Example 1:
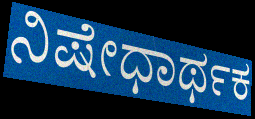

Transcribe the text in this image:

ನಿಷೇಧಾರ್ಥಕ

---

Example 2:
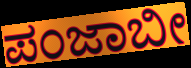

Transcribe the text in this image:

ಪಂಜಾಬೀ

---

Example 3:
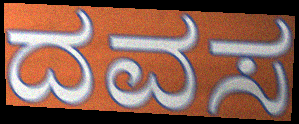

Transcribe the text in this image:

ದವಸ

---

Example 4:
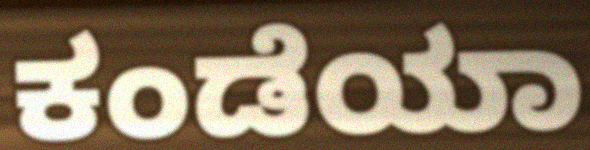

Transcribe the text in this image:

ಕಂಡೆಯಾ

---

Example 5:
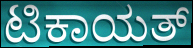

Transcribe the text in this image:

ಟಿಕಾಯತ್